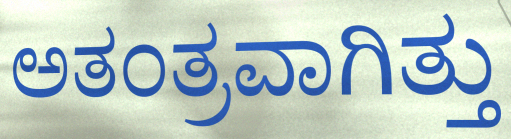
ಅತಂತ್ರವಾಗಿತ್ತು